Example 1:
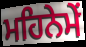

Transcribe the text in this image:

ਮਹਿਨੇਮੇਂ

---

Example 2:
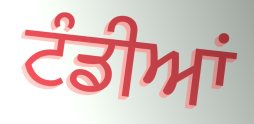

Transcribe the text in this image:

ਟੰਡੀਆਂ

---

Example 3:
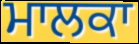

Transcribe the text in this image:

ਮਾਲਕਾ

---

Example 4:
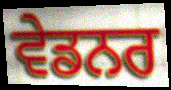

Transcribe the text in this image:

ਵੇਡਨਰ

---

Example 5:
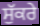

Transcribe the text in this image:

ਸੁੱਕਰੇ